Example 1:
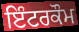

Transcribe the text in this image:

ਇੰਟਰਕੌਮ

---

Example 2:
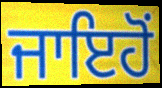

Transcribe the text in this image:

ਜਾਇਹੋਂ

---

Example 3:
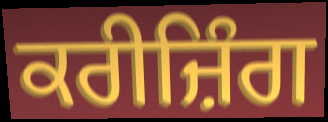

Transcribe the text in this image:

ਕਰੀਜ਼ਿੰਗ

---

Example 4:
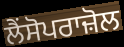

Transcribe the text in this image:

ਲੈਂਸੋਪਰਾਜ਼ੋਲ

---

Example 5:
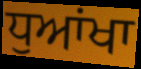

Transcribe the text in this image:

ਧੁਆਂਖਾ